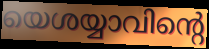
യെശയ്യാവിന്റെ